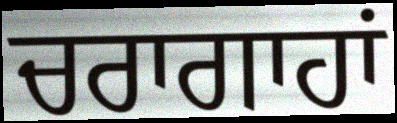
ਚਰਾਗਾਹਾਂ